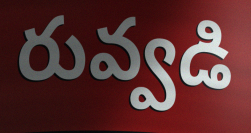
రువ్వడి